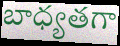
బాధ్యతగా